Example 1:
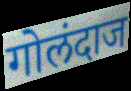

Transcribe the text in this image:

गोलंदाज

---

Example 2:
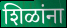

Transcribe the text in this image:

शिळांना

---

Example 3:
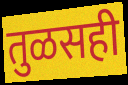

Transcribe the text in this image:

तुळसही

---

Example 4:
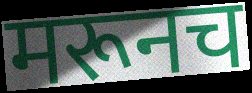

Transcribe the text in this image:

मरूनच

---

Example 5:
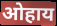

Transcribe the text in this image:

ओहाय